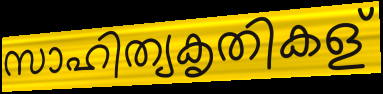
സാഹിത്യകൃതികള്